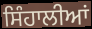
ਸਿੰਹਾਲੀਆਂ